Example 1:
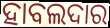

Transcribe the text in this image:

ହାବଲଦାର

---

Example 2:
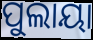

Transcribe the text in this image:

ପୁଲାୟା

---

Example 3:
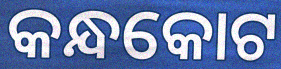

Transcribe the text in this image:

କନ୍ଧକୋଟ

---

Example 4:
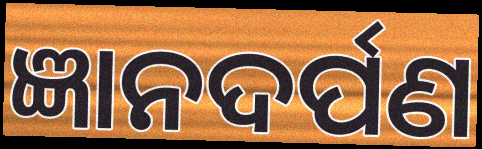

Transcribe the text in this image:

ଜ୍ଞାନଦର୍ପଣ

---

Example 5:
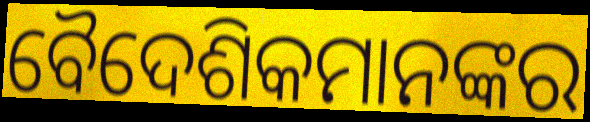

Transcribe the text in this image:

ବୈଦେଶିକମାନଙ୍କର